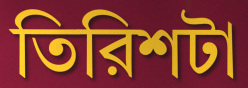
তিরিশটা